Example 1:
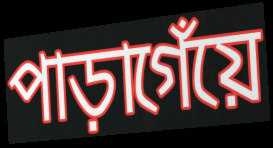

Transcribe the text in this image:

পাড়াগেঁয়ে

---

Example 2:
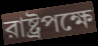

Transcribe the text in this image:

রাষ্ট্রপক্ষে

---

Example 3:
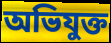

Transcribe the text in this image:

অভিযুক্ত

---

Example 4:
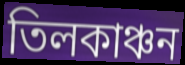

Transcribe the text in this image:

তিলকাঞ্চন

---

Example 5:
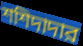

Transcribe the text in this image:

শশিদাদার